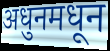
अधुनमधून